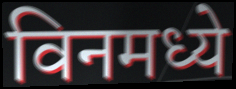
विनमध्ये